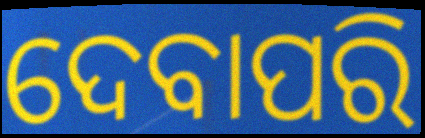
ଦେବାପରି